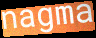
nagma